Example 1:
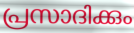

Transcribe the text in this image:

പ്രസാദിക്കും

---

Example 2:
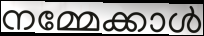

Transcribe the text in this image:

നമ്മേക്കാൾ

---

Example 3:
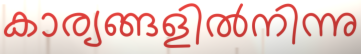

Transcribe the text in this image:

കാര്യങ്ങളിൽനിന്നു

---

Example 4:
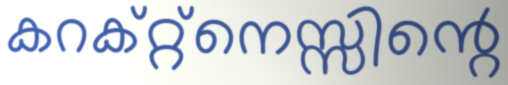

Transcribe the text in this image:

കറക്റ്റ്നെസ്സിന്റെ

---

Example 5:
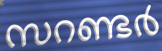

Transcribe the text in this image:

സറണ്ടർ